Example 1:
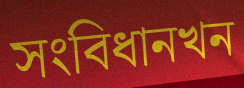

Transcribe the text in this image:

সংবিধানখন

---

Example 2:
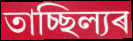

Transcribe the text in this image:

তাচ্ছিল্যৰ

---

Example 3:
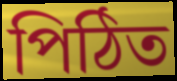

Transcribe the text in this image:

পিঠিত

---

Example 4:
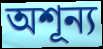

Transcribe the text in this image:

অশূন্য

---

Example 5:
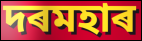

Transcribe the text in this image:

দৰমহাৰ